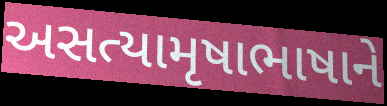
અસત્યામૃષાભાષાને